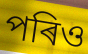
পৰিও